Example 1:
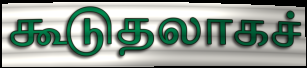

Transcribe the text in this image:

கூடுதலாகச்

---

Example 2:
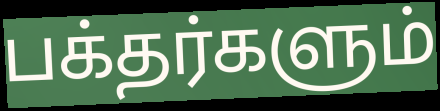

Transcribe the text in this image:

பக்தர்களும்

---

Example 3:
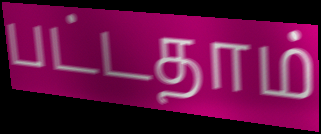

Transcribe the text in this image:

பட்டதாம்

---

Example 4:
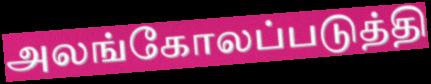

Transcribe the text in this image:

அலங்கோலப்படுத்தி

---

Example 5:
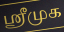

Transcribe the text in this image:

ஸ்ரீமுக